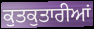
ਕੁਤਕੁਤਾਰੀਆਂ